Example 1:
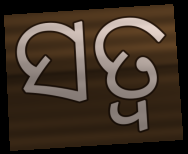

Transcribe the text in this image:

ସତ୍ୱ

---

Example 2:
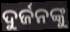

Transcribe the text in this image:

ଦୁର୍ଜନଙ୍କୁ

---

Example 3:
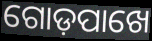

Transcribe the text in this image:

ଗୋଡ଼ପାଖେ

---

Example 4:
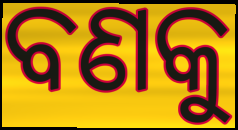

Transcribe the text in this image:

ବଣକୁ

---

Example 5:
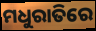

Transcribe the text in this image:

ମଧୁରାତିରେ